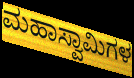
ಮಹಾಸ್ವಾಮಿಗಳ